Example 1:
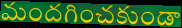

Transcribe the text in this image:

మందగించకుండా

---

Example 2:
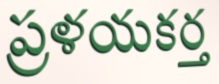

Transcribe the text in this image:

ప్రళయకర్త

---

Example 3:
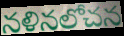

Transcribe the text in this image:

నళినలోచన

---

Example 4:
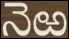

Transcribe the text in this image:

నెఱ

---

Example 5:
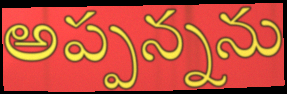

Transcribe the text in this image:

అప్పన్నను